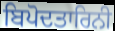
ਬਿਪੋਦਤਾਰਿਨੀ